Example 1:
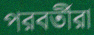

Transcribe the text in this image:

পরবর্তীরা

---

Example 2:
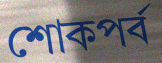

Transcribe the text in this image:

শোকপর্ব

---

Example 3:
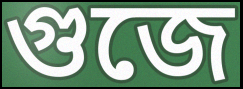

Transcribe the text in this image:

গুজে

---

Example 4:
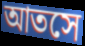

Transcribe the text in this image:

আতসে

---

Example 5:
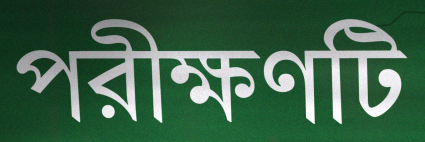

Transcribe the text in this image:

পরীক্ষণটি